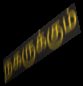
நகருக்கும்